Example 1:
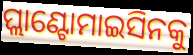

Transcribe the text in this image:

ପ୍ଲାଣ୍ଟୋମାଇସିନକୁ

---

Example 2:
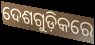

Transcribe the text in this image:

ଦେଶଗୁଡ଼ିକରେ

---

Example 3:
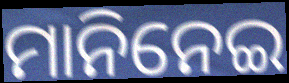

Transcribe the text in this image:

ମାନିନେଇ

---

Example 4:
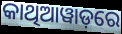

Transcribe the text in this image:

କାଥିଆୱାଡ଼ରେ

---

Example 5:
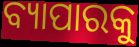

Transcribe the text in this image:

ବ୍ୟାପାରକୁ